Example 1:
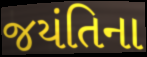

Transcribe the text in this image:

જયંતિના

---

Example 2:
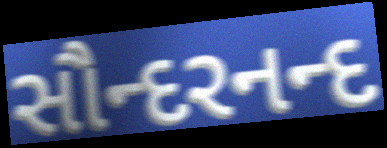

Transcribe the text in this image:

સૌન્દરનન્દ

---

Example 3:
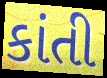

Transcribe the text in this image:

કાંતી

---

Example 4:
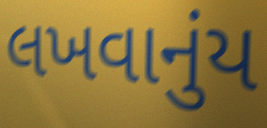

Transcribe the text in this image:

લખવાનુંય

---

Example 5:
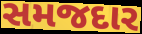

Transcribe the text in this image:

સમજદાર